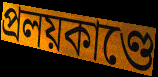
প্রলয়কাণ্ডে